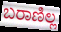
ಬರಾಣಿಲ್ಲ